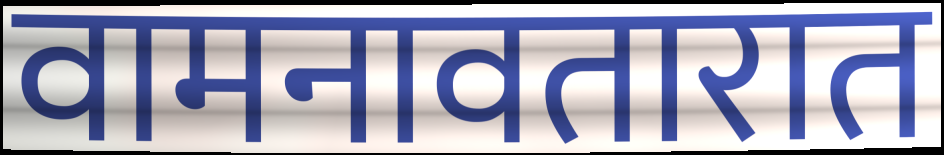
वामनावतारात